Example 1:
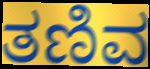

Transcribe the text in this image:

ತಣಿವ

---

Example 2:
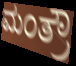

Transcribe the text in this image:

ಮಂತ್ರೌ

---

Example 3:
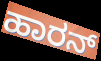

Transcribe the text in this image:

ಹಾರನ್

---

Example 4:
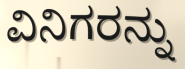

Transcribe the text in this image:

ವಿನಿಗರನ್ನು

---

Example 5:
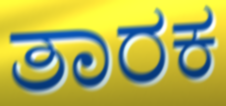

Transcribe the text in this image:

ತಾರಕ